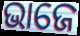
ଭାଜେ